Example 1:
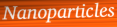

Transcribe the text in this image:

Nanoparticles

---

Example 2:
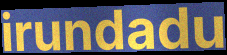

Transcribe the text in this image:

irundadu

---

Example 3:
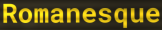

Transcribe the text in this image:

Romanesque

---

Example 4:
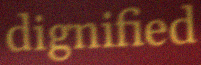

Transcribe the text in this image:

dignified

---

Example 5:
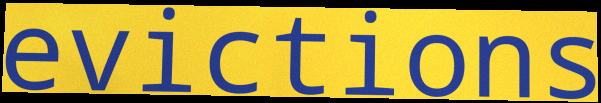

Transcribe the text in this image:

evictions